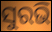
ସୁରଭି